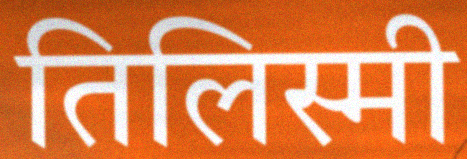
तिलिस्मी